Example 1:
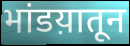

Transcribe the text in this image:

भांडय़ातून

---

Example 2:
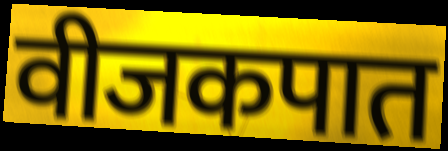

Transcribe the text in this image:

वीजकपात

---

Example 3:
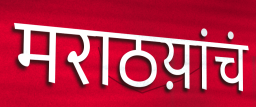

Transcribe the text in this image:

मराठय़ांचं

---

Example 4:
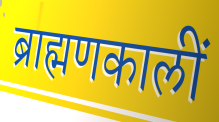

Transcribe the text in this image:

ब्राह्मणकालीं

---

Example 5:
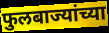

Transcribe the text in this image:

फुलबाज्यांच्या